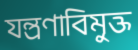
যন্ত্রণাবিমুক্ত